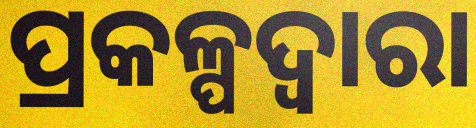
ପ୍ରକଳ୍ପଦ୍ୱାରା